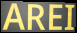
AREI